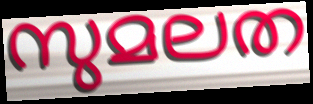
സുമലത